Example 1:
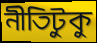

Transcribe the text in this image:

নীতিটুকু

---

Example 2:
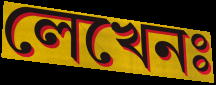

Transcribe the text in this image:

লেখেনঃ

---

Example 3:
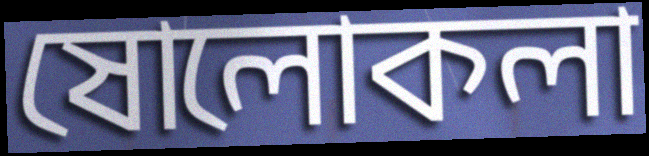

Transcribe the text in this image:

ষোলোকলা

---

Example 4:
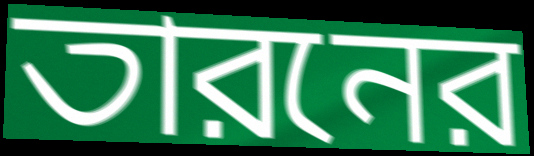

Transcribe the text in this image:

তারনের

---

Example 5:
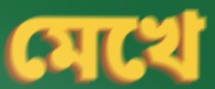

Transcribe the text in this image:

মেখে